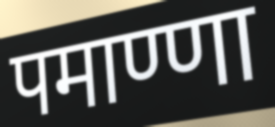
पमाण्णा